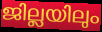
ജില്ലയിലും